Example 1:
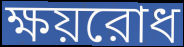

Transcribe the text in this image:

ক্ষয়রোধ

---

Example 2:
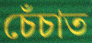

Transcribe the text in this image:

চেঁচাত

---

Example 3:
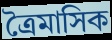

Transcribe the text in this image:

ত্রৈমাসিক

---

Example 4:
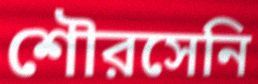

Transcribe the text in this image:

শৌরসেনি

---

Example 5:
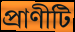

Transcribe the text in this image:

প্রাণীটি